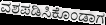
ವಶಪಡಿಸಿಕೊಂಡಾಗ